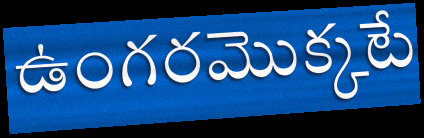
ఉంగరమొక్కటే